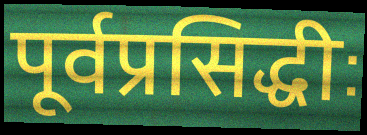
पूर्वप्रसिद्धीः